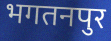
भगतनपुर